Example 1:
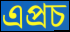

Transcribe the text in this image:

এপ্রচ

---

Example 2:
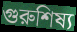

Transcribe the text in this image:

গুরুশিষ্য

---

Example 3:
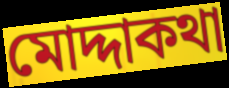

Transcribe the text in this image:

মোদ্দাকথা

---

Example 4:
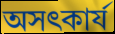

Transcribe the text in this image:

অসৎকার্য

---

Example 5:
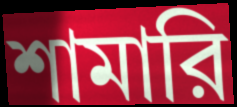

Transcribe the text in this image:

শামারি